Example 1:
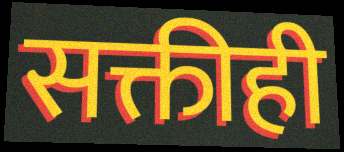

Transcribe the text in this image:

सक्तीही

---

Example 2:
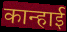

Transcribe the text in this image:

कान्हाई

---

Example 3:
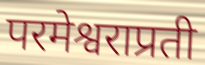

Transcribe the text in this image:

परमेश्वराप्रती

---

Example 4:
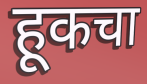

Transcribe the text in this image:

हूकचा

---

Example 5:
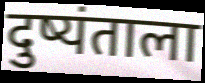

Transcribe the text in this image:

दुष्यंताला